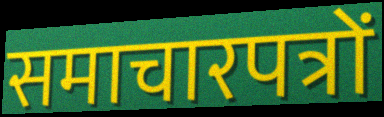
समाचारपत्रों